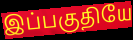
இப்பகுதியே